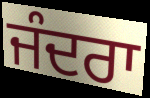
ਜੰਦਰਾ